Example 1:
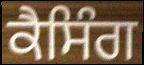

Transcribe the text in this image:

ਕੈਸਿੰਗ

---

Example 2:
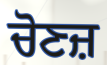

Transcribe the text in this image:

ਚੋਣਜ਼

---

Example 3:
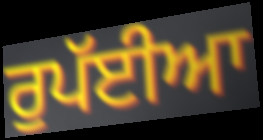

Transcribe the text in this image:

ਰੁਪੱਈਆ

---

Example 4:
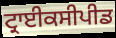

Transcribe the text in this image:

ਟ੍ਰਾਈਕਸੀਪੀਡ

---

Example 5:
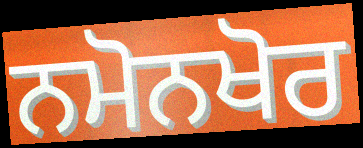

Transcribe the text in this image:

ਨਮੋਨਖੋਰ